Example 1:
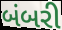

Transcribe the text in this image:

બંબરી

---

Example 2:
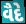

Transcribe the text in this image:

વૈદે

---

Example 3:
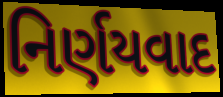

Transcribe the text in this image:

નિર્ણયવાદ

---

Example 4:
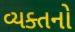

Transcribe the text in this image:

વ્યક્તનો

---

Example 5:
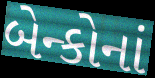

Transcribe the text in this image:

બેન્કોનાં